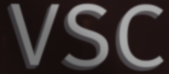
VSC